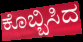
ಕೊಬ್ಬಿಸಿದ